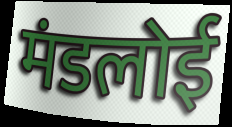
मंडलोई